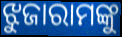
ଝୁଜାରାମଙ୍କୁ